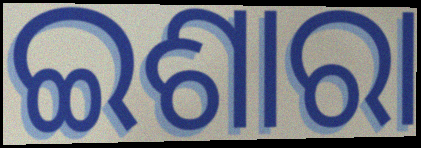
ଇଶାରା